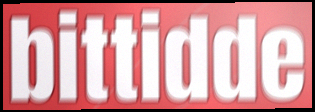
bittidde